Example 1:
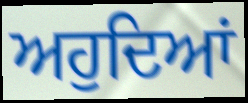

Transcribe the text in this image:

ਅਹੁਦਿਆਂ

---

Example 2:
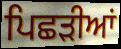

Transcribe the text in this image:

ਪਿਛੜੀਆਂ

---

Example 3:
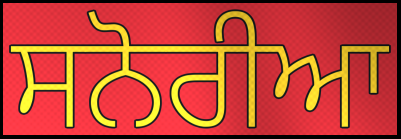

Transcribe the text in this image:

ਸਨੋਰੀਆ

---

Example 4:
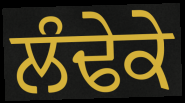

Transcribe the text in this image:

ਲੰਢੇਕੇ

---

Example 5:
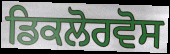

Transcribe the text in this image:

ਡਿਕਲੋਰਵੋਸ